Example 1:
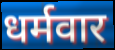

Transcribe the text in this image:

धर्मवार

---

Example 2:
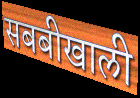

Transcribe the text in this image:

सबबीखाली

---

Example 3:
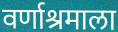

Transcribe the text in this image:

वर्णाश्रमाला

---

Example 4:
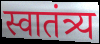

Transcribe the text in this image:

स्वातंत्र्य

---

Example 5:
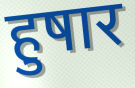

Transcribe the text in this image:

हुषार